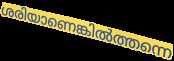
ശരിയാണെങ്കിൽത്തന്നെ